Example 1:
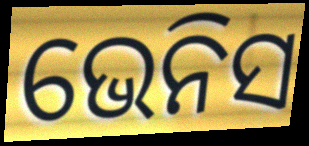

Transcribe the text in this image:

ଭେନିସ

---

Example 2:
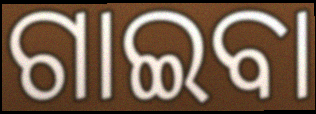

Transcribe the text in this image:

ଗାଇବା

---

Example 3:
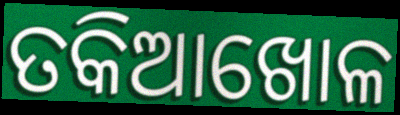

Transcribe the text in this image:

ତକିଆଖୋଳ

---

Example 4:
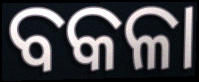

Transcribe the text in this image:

ବକଳା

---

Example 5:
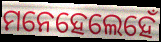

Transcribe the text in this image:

ମନେହେଲେହେଁ